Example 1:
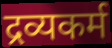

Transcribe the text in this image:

द्रव्यकर्म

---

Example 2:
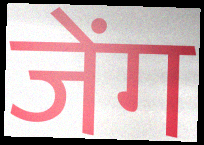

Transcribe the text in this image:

जेंग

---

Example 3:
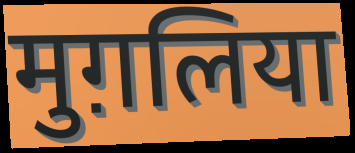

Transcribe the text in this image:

मुग़लिया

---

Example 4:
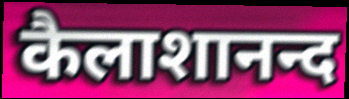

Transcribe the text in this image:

कैलाशानन्द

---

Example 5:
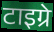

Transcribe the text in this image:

टाइग्रे